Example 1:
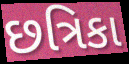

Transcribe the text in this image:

છત્રિકા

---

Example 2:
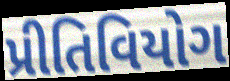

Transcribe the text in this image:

પ્રીતિવિયોગ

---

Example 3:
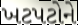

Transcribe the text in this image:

ખટપટોને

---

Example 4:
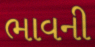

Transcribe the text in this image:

ભાવની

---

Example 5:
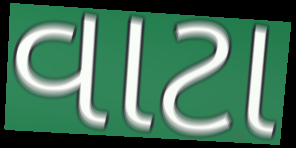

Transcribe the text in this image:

વાટા